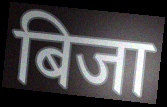
बिजा